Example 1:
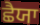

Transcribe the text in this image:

ਛੈਯਾ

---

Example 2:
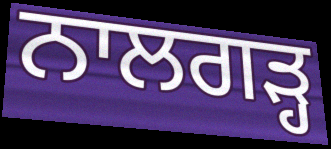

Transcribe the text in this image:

ਨਾਲਗੜ੍ਹ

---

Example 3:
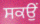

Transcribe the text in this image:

ਸਕਉਂ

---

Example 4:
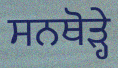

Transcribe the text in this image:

ਸਨਥੋੜ੍ਹੇ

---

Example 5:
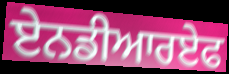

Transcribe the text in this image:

ਏਨਡੀਆਰਏਫ